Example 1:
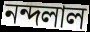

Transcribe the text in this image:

নন্দলাল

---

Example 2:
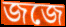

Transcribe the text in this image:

জজে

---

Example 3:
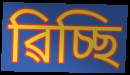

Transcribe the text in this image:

ৱিচ্ছি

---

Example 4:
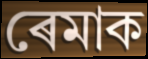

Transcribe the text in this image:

ৰেমাক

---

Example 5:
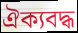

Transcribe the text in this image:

ঐক্যবদ্ধ